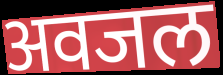
अवजल